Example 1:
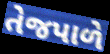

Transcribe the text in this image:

તેજપાળે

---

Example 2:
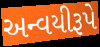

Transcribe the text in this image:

અન્વયીરૂપે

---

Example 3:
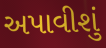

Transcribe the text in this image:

અપાવીશું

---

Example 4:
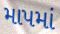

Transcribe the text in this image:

માપમાં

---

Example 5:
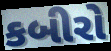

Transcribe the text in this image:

કબીરો